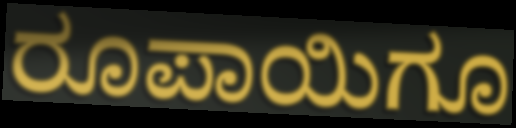
ರೂಪಾಯಿಗೂ